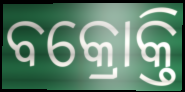
ବକ୍ରୋକ୍ତି